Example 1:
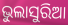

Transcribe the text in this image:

ଭୁଲାସୁରିଆ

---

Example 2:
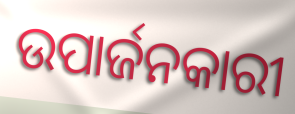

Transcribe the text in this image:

ଉପାର୍ଜନକାରୀ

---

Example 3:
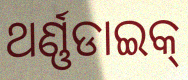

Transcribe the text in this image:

ଥର୍ଣ୍ଣଡାଇକ୍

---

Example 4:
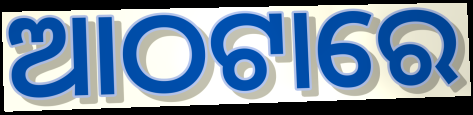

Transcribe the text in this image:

ଆଠଟାରେ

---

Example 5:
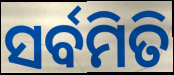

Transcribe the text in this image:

ସର୍ବମିତି